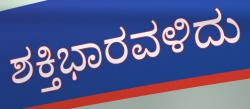
ಶಕ್ತಿಭಾರವಳಿದು